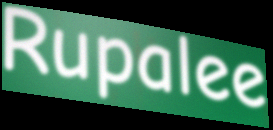
Rupalee